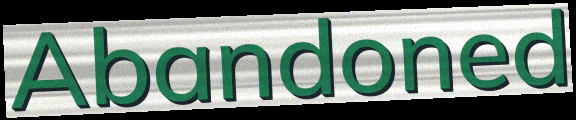
Abandoned